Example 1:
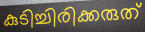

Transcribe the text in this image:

കുടിച്ചിരിക്കരുത്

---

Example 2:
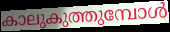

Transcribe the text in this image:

കാലുകുത്തുമ്പോൾ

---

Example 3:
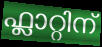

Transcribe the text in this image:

ഫ്ലാറ്റിന്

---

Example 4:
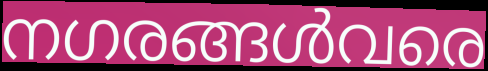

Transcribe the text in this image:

നഗരങ്ങൾവരെ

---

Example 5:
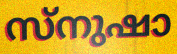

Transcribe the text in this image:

സ്നുഷാ